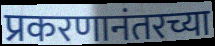
प्रकरणानंतरच्या